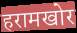
हरामखोर